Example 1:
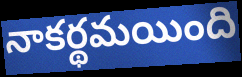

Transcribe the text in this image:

నాకర్థమయింది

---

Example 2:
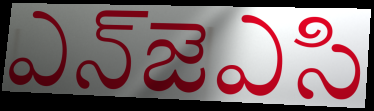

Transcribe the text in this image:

ఎన్‌జెఎసి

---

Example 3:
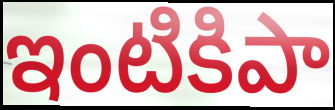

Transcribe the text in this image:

ఇంటికిపా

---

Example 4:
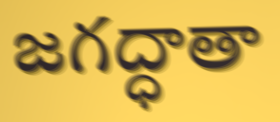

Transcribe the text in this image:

జగద్ధాతా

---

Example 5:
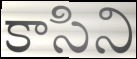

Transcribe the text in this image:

కాసిని